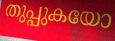
തുപ്പുകയോ